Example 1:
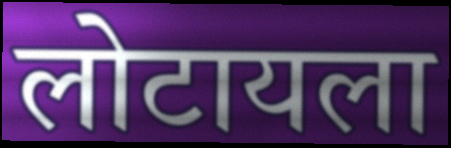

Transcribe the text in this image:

लोटायला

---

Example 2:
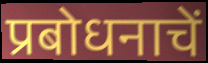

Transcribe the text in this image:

प्रबोधनाचें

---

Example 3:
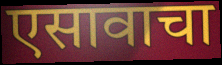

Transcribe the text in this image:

एसावाचा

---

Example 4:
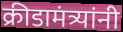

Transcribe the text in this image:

क्रीडामंत्र्यांनी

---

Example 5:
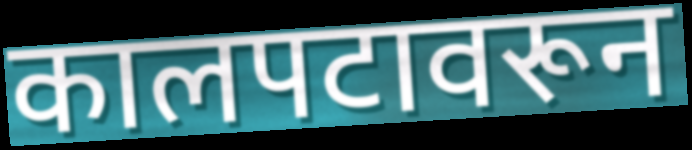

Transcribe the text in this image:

कालपटावरून